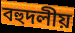
বহুদলীয়